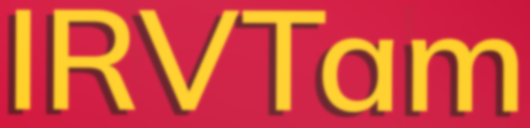
IRVTam